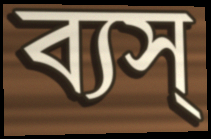
ব্যস্